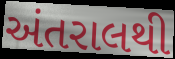
અંતરાલથી